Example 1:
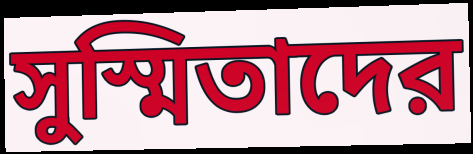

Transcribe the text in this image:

সুস্মিতাদের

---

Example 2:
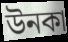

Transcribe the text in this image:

উনকা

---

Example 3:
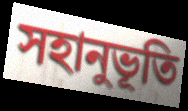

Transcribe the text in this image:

সহানুভূতি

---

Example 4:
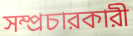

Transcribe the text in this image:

সম্প্রচারকারী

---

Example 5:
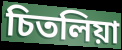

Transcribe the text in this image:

চিতলিয়া